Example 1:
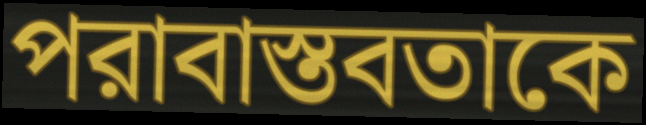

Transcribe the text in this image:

পরাবাস্তবতাকে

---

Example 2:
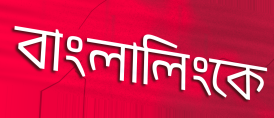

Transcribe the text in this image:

বাংলালিংকে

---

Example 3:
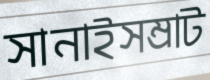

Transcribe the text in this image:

সানাইসম্রাট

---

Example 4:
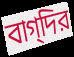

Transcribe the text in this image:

বাগ্‌দির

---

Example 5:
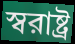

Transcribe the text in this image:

স্বরাষ্ট্র